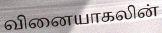
வினையாகலின்